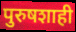
पुरुषशाही